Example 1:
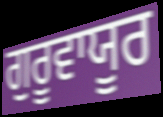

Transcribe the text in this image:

ਗੁਰੂਵਾਯੂਰ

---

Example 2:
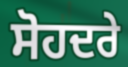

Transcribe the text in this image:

ਸੋਹਦਰੇ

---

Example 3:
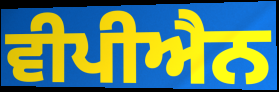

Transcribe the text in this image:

ਵੀਪੀਐਨ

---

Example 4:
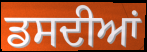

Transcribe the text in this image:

ਡਸਦੀਆਂ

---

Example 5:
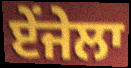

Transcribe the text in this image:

ਏਂਜੇਲਾ